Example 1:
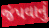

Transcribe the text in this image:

જંપવાનું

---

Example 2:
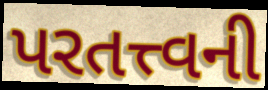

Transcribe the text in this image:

પરતત્ત્વની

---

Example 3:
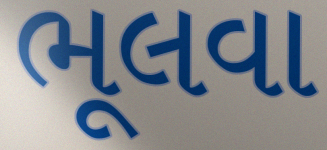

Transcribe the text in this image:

ભૂલવા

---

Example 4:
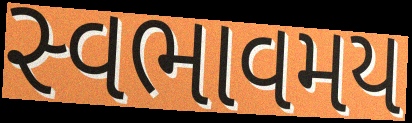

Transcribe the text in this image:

સ્વભાવમય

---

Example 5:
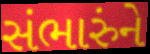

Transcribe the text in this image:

સંભારુંને